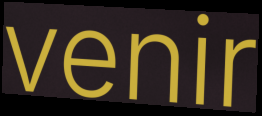
venir